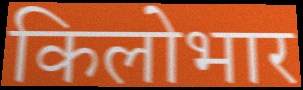
किलोभार